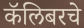
कॅलिबरचे